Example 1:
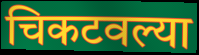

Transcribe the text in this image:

चिकटवल्या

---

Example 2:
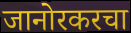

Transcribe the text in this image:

जानोरकरचा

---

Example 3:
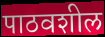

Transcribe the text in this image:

पाठवशील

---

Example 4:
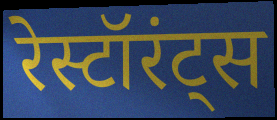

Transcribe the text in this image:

रेस्टॉरंट्स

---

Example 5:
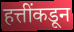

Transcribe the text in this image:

हत्तींकडून